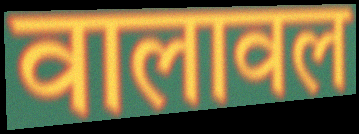
वालावल